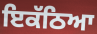
ਇਕੱਠਿਆ